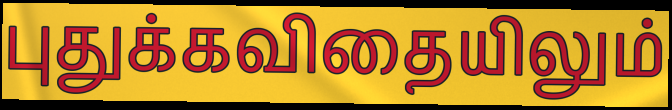
புதுக்கவிதையிலும்